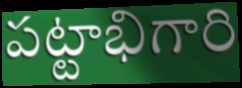
పట్టాభిగారి